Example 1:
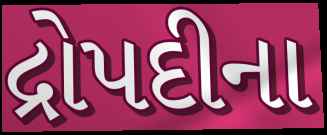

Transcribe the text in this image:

દ્રોપદીના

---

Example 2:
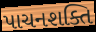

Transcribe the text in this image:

પાચનશક્તિ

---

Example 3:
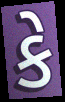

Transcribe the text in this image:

કે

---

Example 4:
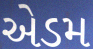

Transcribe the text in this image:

એડમ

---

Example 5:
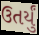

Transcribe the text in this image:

ઉતર્યું